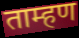
ताम्हण